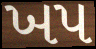
ખપ